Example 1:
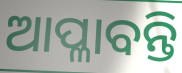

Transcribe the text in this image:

ଆପ୍ଳାବନ୍ତି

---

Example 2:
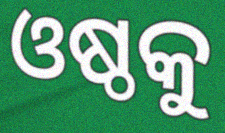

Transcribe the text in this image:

ଓଷ୍ଠକୁ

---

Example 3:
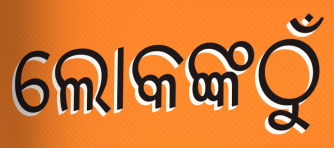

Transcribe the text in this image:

ଲୋକଙ୍କଠୁଁ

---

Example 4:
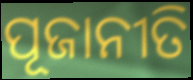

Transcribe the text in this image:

ପୂଜାନୀତି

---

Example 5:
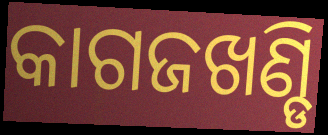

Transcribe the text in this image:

କାଗଜଖଣ୍ଡି